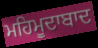
ਮਹਿਮੂਦਾਬਾਦ